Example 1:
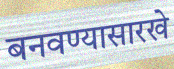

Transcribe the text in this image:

बनवण्यासारखे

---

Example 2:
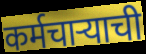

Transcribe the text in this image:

कर्मचार्‍याची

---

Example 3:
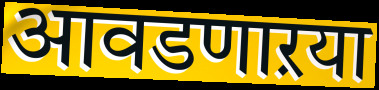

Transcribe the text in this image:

आवडणाऱया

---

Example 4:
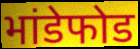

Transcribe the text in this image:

भांडेफोड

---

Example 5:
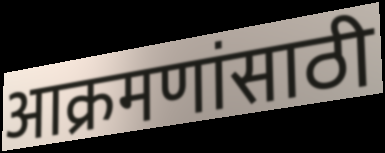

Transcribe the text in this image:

आक्रमणांसाठी